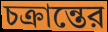
চক্রান্তের